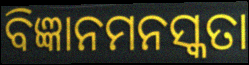
ବିଜ୍ଞାନମନସ୍କତା